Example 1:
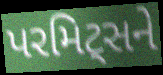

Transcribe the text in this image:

પરમિટ્સને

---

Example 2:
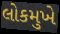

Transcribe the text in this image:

લોકમુખે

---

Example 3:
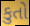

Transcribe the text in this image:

કુતો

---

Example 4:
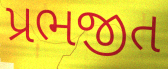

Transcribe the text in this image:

પ્રભજીત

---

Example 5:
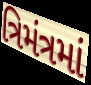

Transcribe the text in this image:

ત્રિમંત્રમાં